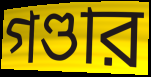
গণ্ডার